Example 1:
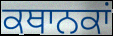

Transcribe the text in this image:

ਕਥਾਨਕਾਂ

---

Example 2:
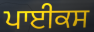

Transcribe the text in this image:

ਪਾਈਕਸ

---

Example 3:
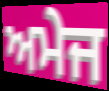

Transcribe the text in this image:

ਅਮੇਜ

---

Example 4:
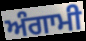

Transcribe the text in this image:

ਅੰਗਾਮੀ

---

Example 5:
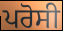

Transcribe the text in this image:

ਪਰੋਸੀ